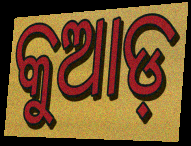
କୁଆଡ଼